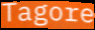
Tagore